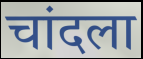
चांदला